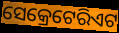
ସେକ୍ରେଟେରିଏଟ